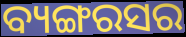
ବ୍ୟଙ୍ଗରସର